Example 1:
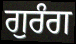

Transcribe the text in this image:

ਗੁਰੰਗ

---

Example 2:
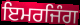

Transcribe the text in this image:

ਇਮਰਜਿੰਗ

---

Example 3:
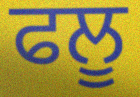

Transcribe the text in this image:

ਫਲੂ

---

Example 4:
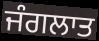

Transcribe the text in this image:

ਜੰਗਲਾਤ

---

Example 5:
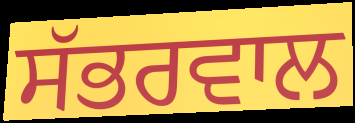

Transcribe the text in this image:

ਸੱਭਰਵਾਲ